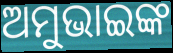
ଅମୁଭାଇଙ୍କ